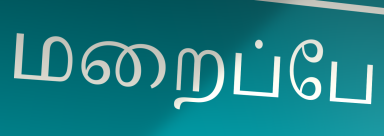
மறைப்பே